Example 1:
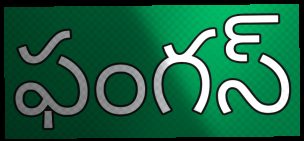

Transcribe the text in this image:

ఫంగస్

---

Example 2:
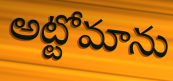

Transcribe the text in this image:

అట్టోమాను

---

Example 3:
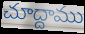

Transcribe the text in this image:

చూద్దాము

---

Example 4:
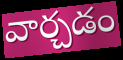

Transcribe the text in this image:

వార్చడం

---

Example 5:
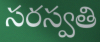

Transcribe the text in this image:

సరస్వతి